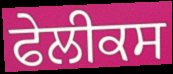
ਫੇਲੀਕਸ